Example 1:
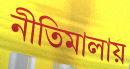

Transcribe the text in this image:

নীতিমালায়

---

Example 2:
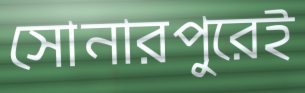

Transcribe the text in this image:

সোনারপুরেই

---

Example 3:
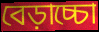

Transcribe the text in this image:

বেড়াচ্চো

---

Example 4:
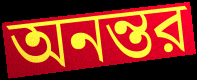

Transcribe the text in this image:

অনন্তর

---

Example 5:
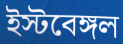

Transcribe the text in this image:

ইস্টবেঙ্গল